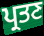
ਪ੍ਰਤਣ